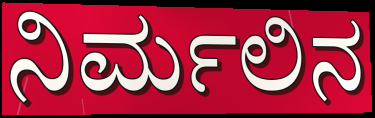
ನಿರ್ಮಲಿನ